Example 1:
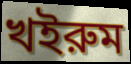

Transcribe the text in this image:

খইরুম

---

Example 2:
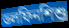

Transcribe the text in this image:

ডলফিনশিশু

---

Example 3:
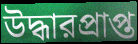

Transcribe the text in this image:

উদ্ধারপ্রাপ্ত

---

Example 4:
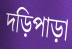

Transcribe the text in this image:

দড়িপাড়া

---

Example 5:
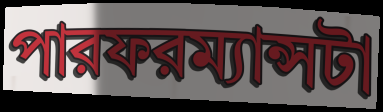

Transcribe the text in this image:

পারফরম্যান্সটা